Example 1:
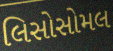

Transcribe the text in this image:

લિસોસોમલ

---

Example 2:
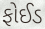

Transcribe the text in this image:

ફોઈડ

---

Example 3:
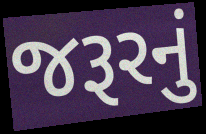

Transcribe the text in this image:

જરૂરનું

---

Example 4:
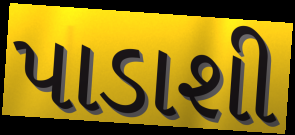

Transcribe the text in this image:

પાડાશી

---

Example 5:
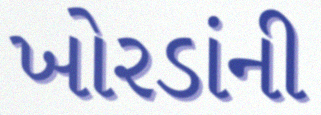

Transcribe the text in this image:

ખોરડાંની